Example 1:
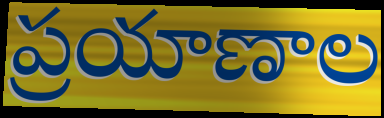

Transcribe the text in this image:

ప్రయాణాల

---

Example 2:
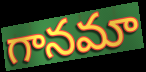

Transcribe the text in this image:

గానమా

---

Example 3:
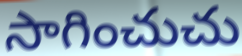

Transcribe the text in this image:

సాగించుచు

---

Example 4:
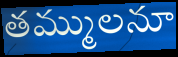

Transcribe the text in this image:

తమ్ములనూ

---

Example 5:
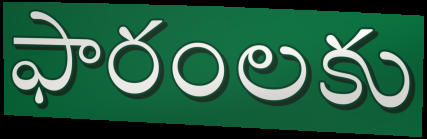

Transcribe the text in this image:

ఫారంలకు